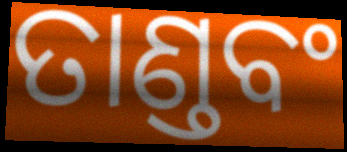
ତାଣ୍ଡବଂ